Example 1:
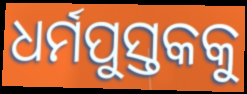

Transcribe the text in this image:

ଧର୍ମପୁସ୍ତକକୁ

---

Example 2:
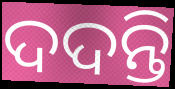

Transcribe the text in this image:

ଦଦନ୍ତି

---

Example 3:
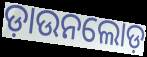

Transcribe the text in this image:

ଡ଼ାଉନଲୋଡ଼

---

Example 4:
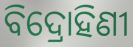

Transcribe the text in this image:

ବିଦ୍ରୋହିଣୀ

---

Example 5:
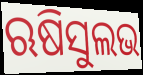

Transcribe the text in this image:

ଋଷିସୁଲଭ